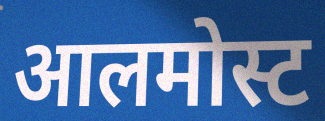
आलमोस्ट